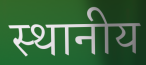
स्थानीय